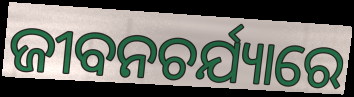
ଜୀବନଚର୍ଯ୍ୟାରେ